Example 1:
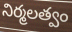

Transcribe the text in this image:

నిర్మలత్వం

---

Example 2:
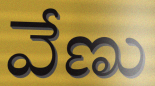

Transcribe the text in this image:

వేణు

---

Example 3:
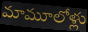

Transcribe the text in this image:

మామూలోళ్లు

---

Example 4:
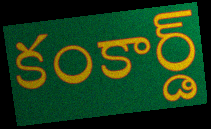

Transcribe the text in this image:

కంకార్డ్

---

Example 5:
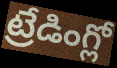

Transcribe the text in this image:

ట్రేడింగ్లో